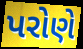
પરોણે